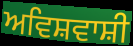
ਅਵਿਸ਼ਵਾਸ਼ੀ